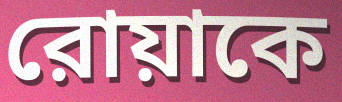
রোয়াকে